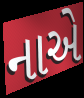
નાએ